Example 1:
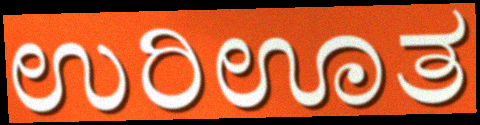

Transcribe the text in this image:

ಉರಿಊತ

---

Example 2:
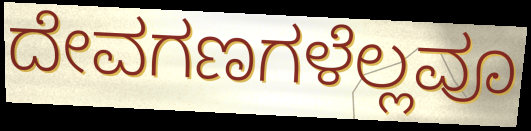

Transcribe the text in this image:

ದೇವಗಣಗಳೆಲ್ಲವೂ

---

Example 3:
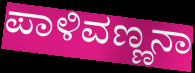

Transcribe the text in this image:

ಪಾಳಿವಣ್ಣನಾ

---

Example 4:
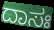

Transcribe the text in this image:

ದಾಸಃ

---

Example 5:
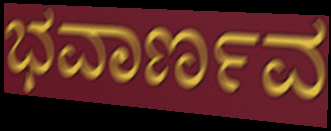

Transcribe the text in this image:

ಭವಾರ್ಣವ